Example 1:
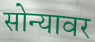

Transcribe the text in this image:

सोन्यावर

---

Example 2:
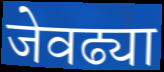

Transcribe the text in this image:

जेवढ्या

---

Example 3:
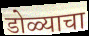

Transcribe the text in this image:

डोळ्याचा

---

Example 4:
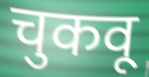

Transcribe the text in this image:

चुकवू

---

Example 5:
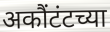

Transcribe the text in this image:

अकौंटंटच्या